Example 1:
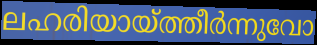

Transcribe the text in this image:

ലഹരിയായ്ത്തീർന്നുവോ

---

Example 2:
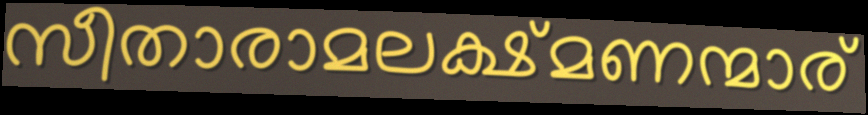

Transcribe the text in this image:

സീതാരാമലക്ഷ്മണന്മാര്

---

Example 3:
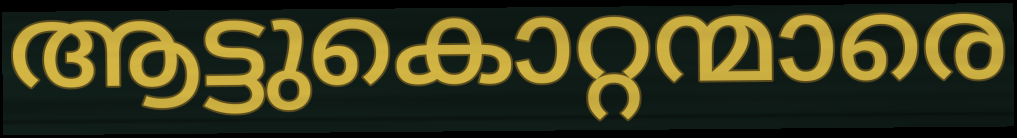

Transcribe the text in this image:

ആട്ടുകൊറ്റന്മാരെ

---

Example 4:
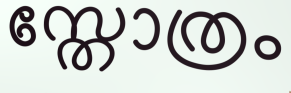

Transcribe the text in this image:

സ്തോത്രം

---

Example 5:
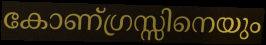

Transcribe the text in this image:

കോണ്ഗ്രസ്സിനെയും